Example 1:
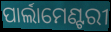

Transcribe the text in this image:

ପାର୍ଲାମେଣ୍ଟରୀ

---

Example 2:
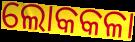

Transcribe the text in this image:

ଲୋକକଳା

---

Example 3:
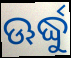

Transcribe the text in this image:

ଊର୍ଦ୍ଧୁ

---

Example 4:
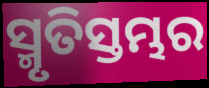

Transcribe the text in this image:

ସ୍ମୃତିସ୍ତମ୍ଭର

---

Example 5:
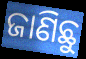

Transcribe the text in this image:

ଜାଣିଛୁ